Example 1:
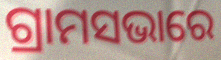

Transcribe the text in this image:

ଗ୍ରାମସଭାରେ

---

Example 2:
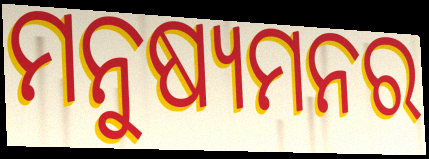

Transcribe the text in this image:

ମନୁଷ୍ୟମନର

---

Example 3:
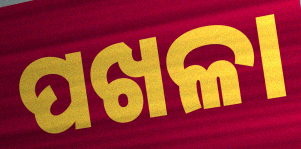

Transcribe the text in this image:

ପଖଳା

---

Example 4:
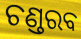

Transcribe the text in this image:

ଚଣ୍ଡରବ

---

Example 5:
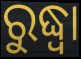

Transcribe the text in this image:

ରୁଦ୍ଧ୍ୱା